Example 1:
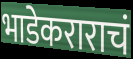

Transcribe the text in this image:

भाडेकराराचं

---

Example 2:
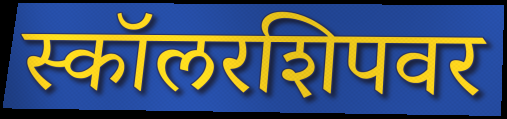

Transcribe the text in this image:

स्कॉलरशिपवर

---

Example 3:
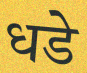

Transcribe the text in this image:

धडे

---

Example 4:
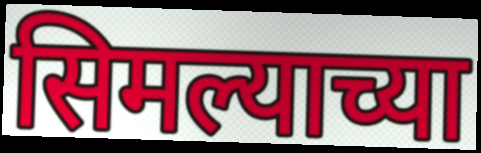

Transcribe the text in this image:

सिमल्याच्या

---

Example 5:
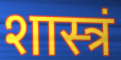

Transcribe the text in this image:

शास्त्रं